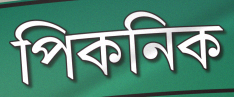
পিকনিক